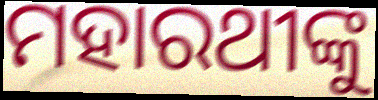
ମହାରଥୀଙ୍କୁ